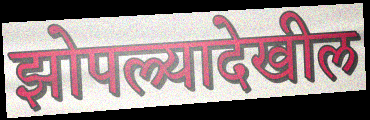
झोपल्यादेखील